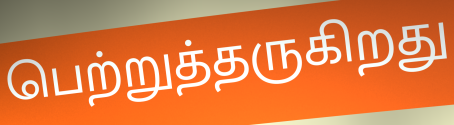
பெற்றுத்தருகிறது